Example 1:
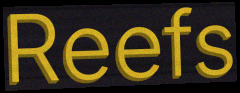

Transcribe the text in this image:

Reefs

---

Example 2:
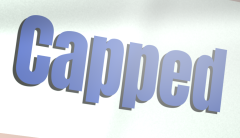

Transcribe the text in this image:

Capped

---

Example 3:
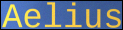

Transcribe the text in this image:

Aelius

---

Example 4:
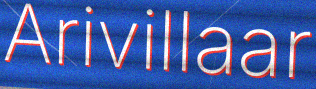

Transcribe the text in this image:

Arivillaar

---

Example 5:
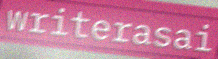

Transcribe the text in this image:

writerasai